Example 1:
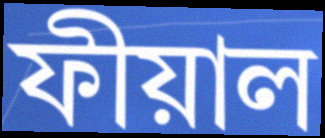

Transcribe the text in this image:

ফীয়াল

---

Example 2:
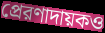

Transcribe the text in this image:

প্রেরণাদায়কও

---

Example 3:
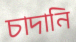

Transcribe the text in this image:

চাদানি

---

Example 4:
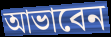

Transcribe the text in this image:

আভাবেন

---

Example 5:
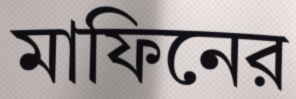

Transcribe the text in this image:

মাফিনের